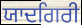
ਯਾਦਗਿਰੀ